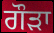
ਗੌੜਾ